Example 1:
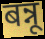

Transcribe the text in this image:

बन्नू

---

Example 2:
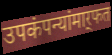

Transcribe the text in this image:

उपकंपन्यांमार्फत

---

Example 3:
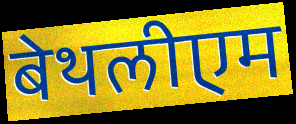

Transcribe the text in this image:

बेथलीएम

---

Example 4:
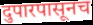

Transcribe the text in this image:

दुपारपासूनच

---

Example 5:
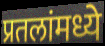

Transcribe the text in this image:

प्रतलांमध्ये